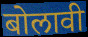
बोलावी